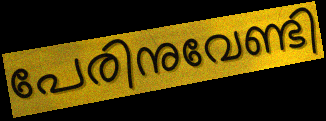
പേരിനുവേണ്ടി